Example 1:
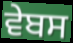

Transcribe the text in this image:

ਵੇਬਸ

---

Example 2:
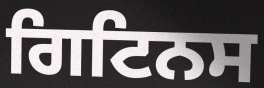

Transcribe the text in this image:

ਗਿਟਿਨਸ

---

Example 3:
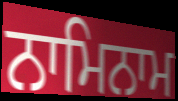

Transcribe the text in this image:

ਨਾਮਿਨਾਮ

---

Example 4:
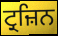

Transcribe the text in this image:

ਟ੍ਰਜ਼ਿਨ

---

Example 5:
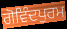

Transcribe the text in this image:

ਗੋਵਿੰਦਪੁਰਮ